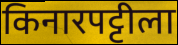
किनारपट्टीला